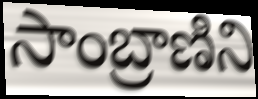
సాంబ్రాణిని